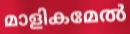
മാളികമേൽ